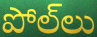
పోల్‌లు